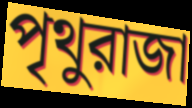
পৃথুরাজা